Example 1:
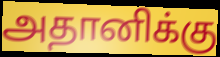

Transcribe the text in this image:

அதானிக்கு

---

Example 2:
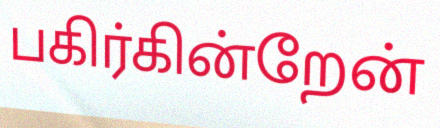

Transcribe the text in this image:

பகிர்கின்றேன்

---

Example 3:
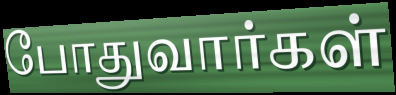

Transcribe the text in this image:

போதுவார்கள்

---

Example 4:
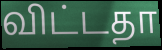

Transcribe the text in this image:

விட்டதா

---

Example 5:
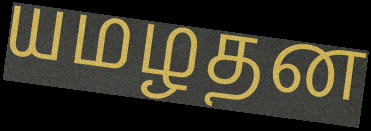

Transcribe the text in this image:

யமழதன